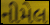
નીમેલ